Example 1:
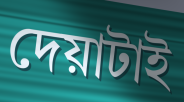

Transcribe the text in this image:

দেয়াটাই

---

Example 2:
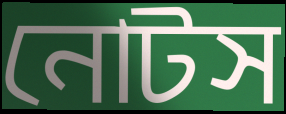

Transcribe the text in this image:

নোটস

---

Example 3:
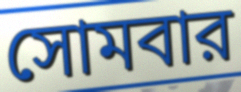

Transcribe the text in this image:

সোমবার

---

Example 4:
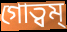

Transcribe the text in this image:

গোত্বম্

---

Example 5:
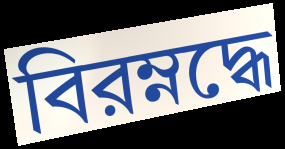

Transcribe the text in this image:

বিরম্নদ্ধে